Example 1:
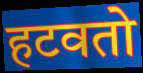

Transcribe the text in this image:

हटवतो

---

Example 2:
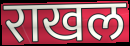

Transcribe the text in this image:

राखल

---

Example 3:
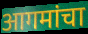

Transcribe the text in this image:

आगमांचा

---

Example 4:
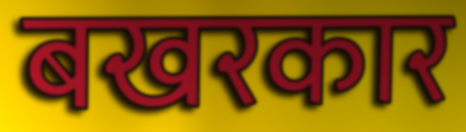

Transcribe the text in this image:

बखरकार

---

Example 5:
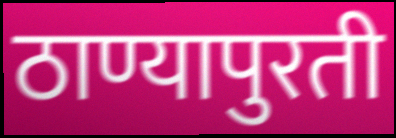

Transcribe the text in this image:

ठाण्यापुरती